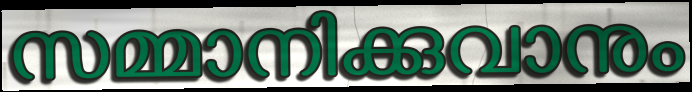
സമ്മാനിക്കുവാനും